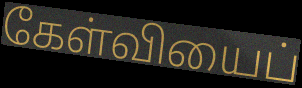
கேள்வியைப்